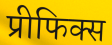
प्रीफिक्स